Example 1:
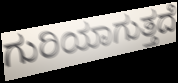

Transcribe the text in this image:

ಗುರಿಯಾಗುತ್ತದೆ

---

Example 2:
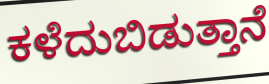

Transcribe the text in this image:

ಕಳೆದುಬಿಡುತ್ತಾನೆ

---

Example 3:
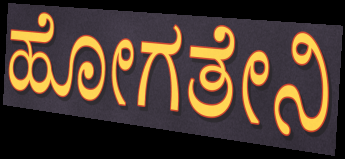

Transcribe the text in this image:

ಹೋಗತೇನಿ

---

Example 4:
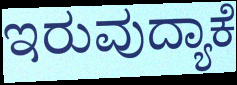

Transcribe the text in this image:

ಇರುವುದ್ಯಾಕೆ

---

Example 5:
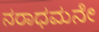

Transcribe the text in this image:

ನರಾಧಮನೇ